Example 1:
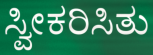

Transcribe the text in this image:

ಸ್ವೀಕರಿಸಿತು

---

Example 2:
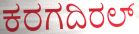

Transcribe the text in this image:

ಕರಗದಿರಲ್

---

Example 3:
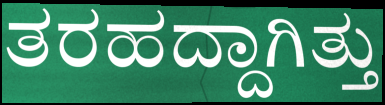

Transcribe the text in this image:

ತರಹದ್ದಾಗಿತ್ತು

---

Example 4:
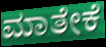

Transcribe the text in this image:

ಮಾತೇಕೆ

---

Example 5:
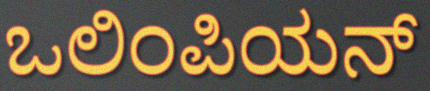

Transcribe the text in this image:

ಒಲಿಂಪಿಯನ್